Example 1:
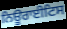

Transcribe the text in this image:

ਨਿਊਰਾਈਟਿਸ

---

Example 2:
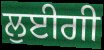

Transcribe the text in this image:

ਲੁਈਗੀ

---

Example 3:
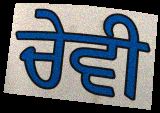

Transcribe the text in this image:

ਚੇਵੀ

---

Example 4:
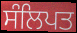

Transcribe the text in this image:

ਸੰਲਿਪਤ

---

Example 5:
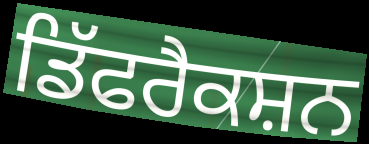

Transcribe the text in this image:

ਡਿੱਫਰੈਕਸ਼ਨ